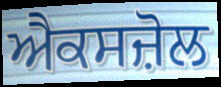
ਐਕਸਜ਼ੋਲ